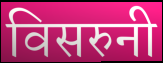
विसरुनी